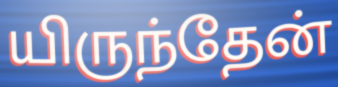
யிருந்தேன்